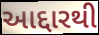
આદ્દારથી